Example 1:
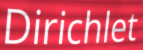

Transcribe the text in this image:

Dirichlet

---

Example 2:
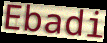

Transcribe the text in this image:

Ebadi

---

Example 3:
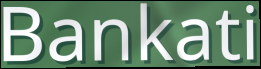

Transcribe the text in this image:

Bankati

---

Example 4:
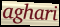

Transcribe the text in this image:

aghari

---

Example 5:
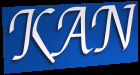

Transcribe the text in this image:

KAN